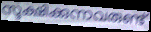
സൂക്ഷിക്കുന്നവരുണ്ട്